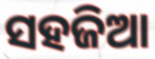
ସହଜିଆ